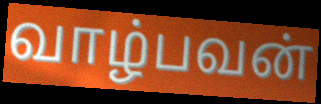
வாழ்பவன்